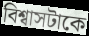
বিশ্বাসটাকে